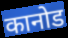
कानोड